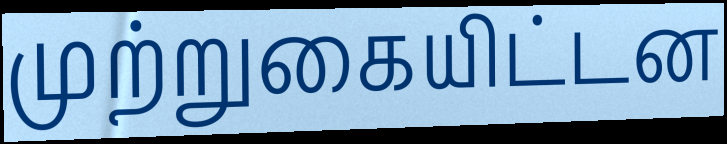
முற்றுகையிட்டன